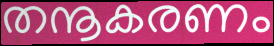
തനൂകരണം